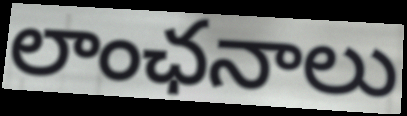
లాంఛనాలు